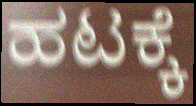
ಹಟಕ್ಕೆ